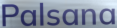
Palsana